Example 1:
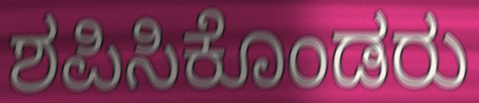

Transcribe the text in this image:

ಶಪಿಸಿಕೊಂಡರು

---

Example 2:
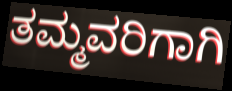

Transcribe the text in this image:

ತಮ್ಮವರಿಗಾಗಿ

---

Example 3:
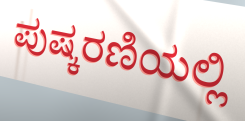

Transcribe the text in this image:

ಪುಷ್ಕರಣಿಯಲ್ಲಿ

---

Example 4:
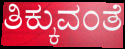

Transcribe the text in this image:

ತಿಕ್ಕುವಂತೆ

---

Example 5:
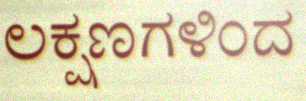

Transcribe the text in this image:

ಲಕ್ಷಣಗಳಿಂದ